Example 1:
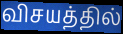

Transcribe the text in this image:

விசயத்தில்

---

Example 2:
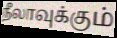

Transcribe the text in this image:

நீலாவுக்கும்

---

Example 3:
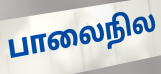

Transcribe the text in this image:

பாலைநில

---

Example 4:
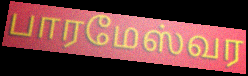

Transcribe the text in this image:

பாரமேஸ்வர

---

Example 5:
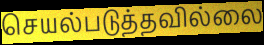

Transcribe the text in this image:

செயல்படுத்தவில்லை